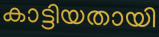
കാട്ടിയതായി